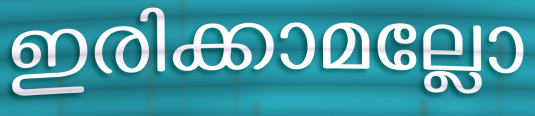
ഇരിക്കാമല്ലോ